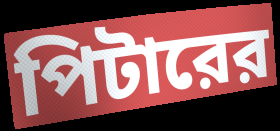
পিটারের